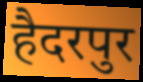
हैदरपुर